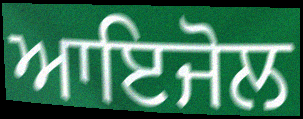
ਆਇਜੋਲ